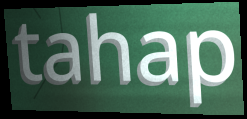
tahap